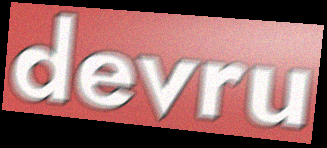
devru